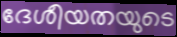
ദേശീയതയുടെ